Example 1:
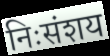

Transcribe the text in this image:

निःसंशय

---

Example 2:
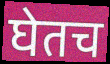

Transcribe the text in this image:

घेतच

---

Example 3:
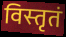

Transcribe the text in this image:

विस्तृतं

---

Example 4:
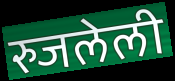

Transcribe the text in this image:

रुजलेली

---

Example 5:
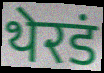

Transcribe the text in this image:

थेरडं